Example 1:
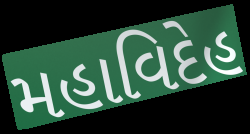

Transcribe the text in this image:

મહાવિદેહ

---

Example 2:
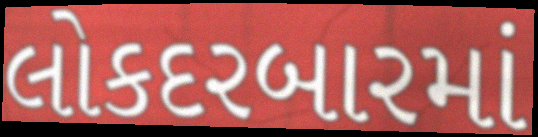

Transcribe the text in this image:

લોકદરબારમાં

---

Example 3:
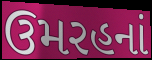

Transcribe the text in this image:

ઉમરહનાં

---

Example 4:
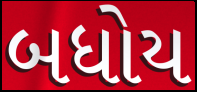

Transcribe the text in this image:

બધોય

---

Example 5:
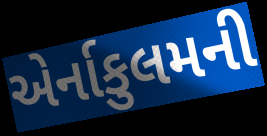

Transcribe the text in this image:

એર્નાકુલમની